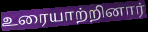
உரையாற்றினார்